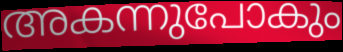
അകന്നുപോകും